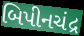
બિપીનચંદ્ર